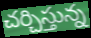
చర్చిస్తున్న